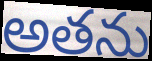
అతను